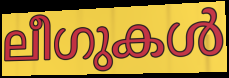
ലീഗുകൾ